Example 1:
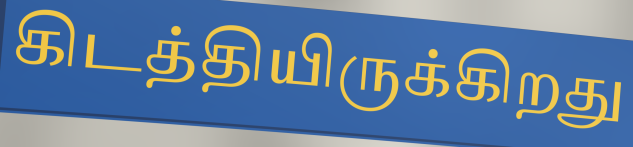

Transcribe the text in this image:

கிடத்தியிருக்கிறது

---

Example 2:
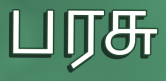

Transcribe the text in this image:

பரசு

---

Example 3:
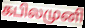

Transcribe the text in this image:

கபிலமுனி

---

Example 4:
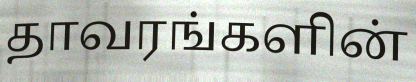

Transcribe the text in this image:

தாவரங்களின்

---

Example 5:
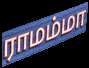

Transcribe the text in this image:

ராமம்மா